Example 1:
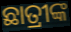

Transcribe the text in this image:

ଛାତ୍ରୀଙ୍କ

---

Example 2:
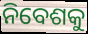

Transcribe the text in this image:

ନିବେଶକୁ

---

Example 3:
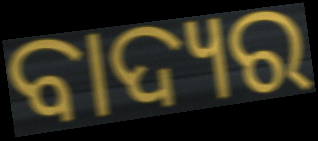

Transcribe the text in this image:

ବାଦ୍ୟର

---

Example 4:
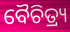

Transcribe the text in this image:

ବୈଚିତ୍ର୍ୟ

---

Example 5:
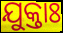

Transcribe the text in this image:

ଯୁକ୍ତାଃ